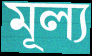
মূল্য